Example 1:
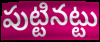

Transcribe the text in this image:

పుట్టినట్టు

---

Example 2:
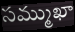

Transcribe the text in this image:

సమ్ముఖా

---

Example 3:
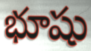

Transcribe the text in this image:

భూషు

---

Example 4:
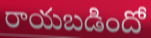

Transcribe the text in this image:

రాయబడిందో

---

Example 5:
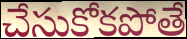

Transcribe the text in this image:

చేసుకోకపోతే